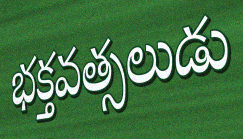
భక్తవత్సలుడు